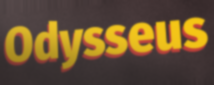
Odysseus